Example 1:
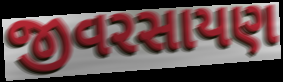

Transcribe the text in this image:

જીવરસાયણ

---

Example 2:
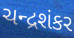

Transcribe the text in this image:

ચન્દ્રશંકર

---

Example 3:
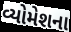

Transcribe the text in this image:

વ્યોમેશના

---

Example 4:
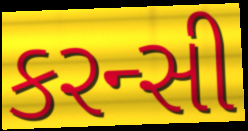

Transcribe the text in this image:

કરન્સી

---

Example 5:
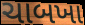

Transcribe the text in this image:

ચાબખા